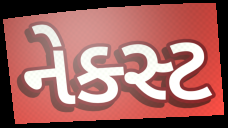
નેક્સ્ટ